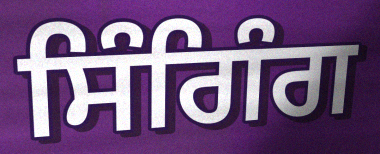
ਸਿੰਗਿੰਗ